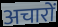
अचारों